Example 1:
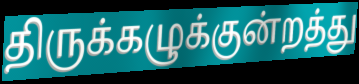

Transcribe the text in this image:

திருக்கழுக்குன்றத்து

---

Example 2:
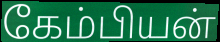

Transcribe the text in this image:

கேம்பியன்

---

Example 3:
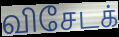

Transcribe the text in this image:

விசேடக்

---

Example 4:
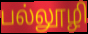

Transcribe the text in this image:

பல்லூழி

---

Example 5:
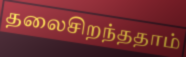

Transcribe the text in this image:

தலைசிறந்ததாம்